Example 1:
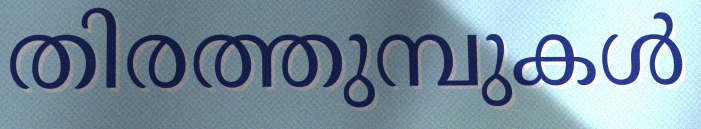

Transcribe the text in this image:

തിരത്തുമ്പുകൾ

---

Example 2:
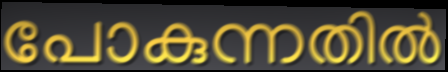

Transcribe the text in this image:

പോകുന്നതിൽ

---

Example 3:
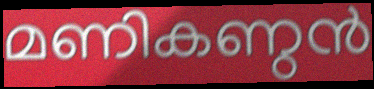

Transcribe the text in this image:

മണികണ്ഠൻ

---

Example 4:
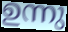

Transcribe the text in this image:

ഉന്നു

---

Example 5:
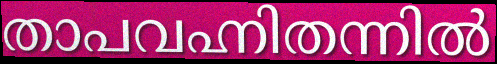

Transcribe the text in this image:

താപവഹ്നിതന്നിൽ